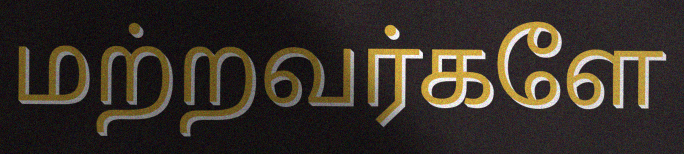
மற்றவர்களே